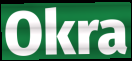
Okra